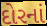
દોરનાં